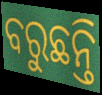
ବରୁଛନ୍ତି